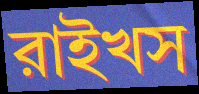
রাইখস